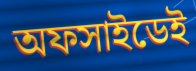
অফসাইডেই